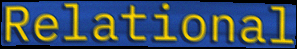
Relational